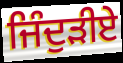
ਜਿੰਦੁੜੀਏ